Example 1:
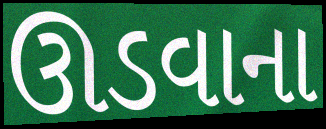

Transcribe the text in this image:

ઊડવાના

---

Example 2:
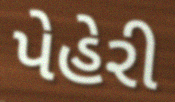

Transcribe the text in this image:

પેહેરી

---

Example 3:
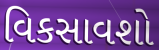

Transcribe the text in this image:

વિકસાવશો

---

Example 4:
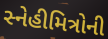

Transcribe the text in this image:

સ્નેહીમિત્રોની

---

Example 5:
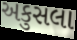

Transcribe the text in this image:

અકુસલા